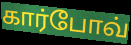
கார்போவ்